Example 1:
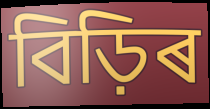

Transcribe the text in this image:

বিড়িৰ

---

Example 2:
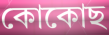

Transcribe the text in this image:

কোকোছ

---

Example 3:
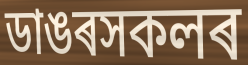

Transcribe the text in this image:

ডাঙৰসকলৰ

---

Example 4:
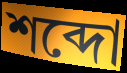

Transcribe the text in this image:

শব্দো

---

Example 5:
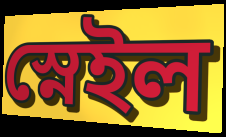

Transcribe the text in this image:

স্নেইল